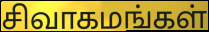
சிவாகமங்கள்